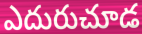
ఎదురుచూడ